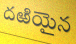
దఱియైన